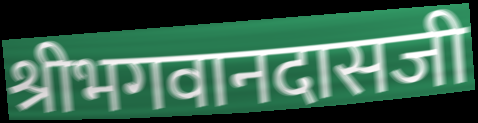
श्रीभगवानदासजी